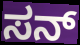
ಸನ್